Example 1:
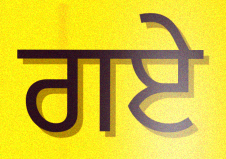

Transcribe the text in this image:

ਗਏ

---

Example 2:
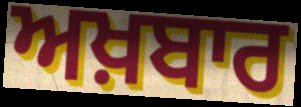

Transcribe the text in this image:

ਅਖ਼ਬਾਰ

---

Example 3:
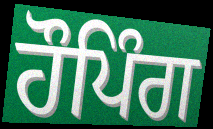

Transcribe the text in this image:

ਹੌਪਿੰਗ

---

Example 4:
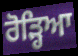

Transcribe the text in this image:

ਰੋੜ੍ਹਿਆ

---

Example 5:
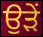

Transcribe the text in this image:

ਉੜੇਂ